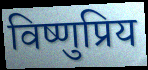
विष्णुप्रिय